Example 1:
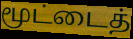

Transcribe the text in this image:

மூட்டைத்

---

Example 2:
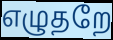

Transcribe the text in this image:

எழுதறே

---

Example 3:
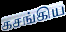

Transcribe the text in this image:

கசங்கிய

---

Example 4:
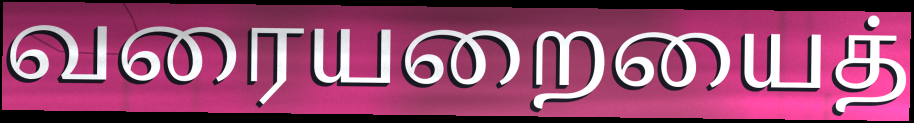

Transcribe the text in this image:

வரையறையைத்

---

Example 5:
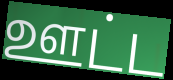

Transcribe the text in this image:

ஊட்ட